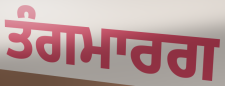
ਤੰਗਮਾਰਗ